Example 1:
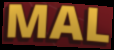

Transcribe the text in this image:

MAL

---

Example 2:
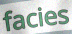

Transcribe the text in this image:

facies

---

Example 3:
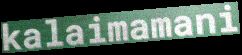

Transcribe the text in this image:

kalaimamani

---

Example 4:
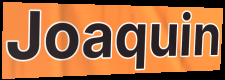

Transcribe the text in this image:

Joaquin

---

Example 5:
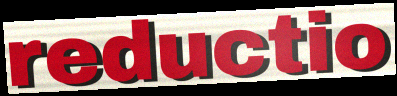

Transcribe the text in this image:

reductio